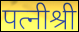
पत्नीश्री